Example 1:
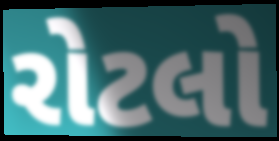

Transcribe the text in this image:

રોટલો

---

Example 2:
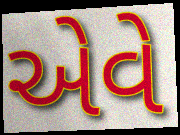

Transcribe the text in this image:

એવે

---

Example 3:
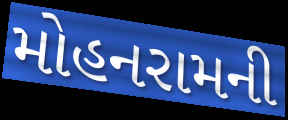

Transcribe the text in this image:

મોહનરામની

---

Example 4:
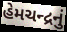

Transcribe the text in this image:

હેમચન્દ્રનું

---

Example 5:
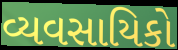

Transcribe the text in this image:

વ્યવસાયિકો